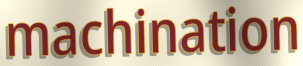
machination